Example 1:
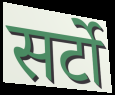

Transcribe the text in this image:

सर्टो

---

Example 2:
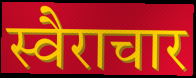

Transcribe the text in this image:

स्वैराचार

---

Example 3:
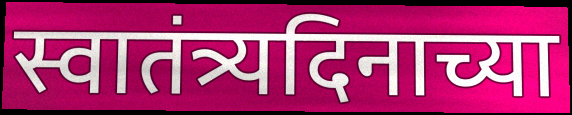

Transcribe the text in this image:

स्वातंत्र्यदिनाच्या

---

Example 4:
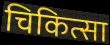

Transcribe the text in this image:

चिकित्सा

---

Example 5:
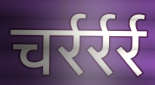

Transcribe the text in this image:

चर्रर्रर्र